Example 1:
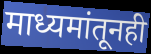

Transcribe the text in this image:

माध्यमांतूनही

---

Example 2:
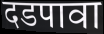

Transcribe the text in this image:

दडपावा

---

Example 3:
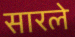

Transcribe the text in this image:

सारले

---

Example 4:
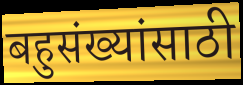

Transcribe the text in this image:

बहुसंख्यांसाठी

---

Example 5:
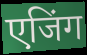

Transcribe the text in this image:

एजिंग